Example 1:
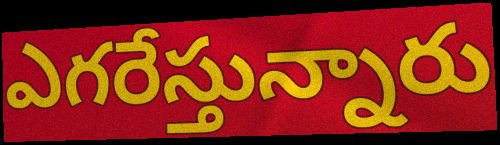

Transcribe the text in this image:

ఎగరేస్తున్నారు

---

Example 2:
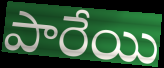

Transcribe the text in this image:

పారేయి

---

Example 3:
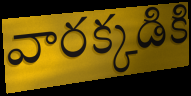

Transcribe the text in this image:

వారక్కడికి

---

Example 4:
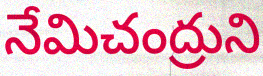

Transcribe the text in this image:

నేమిచంద్రుని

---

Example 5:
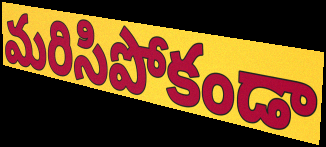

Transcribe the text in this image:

మరిసిపోకండా